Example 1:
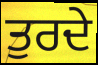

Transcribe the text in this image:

ਤੁਰਦੇ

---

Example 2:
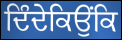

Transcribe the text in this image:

ਦਿੰਦੇਕਿਉਂਕਿ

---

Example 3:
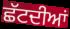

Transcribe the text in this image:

ਛੱਟਦੀਆਂ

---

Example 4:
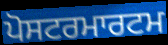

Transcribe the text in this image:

ਪੋਸਟਰਮਾਰਟਮ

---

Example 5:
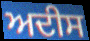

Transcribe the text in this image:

ਅਦੀਸ